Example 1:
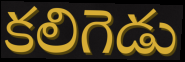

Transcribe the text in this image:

కలిగెడు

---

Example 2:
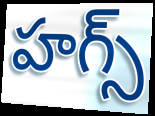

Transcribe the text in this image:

హగ్స్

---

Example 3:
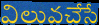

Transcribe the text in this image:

విలువచేసే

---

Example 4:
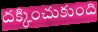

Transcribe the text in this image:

దక్కించుకుంది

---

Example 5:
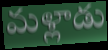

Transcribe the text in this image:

మళ్లాడు